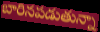
బారినపడుతున్నా